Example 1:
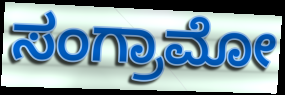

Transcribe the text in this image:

ಸಂಗ್ರಾಮೋ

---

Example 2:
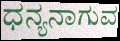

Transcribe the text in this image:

ಧನ್ಯನಾಗುವ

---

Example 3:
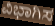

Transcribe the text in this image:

ವಿಭಾಗಿಸ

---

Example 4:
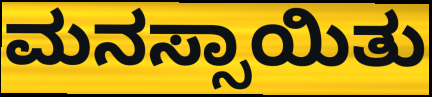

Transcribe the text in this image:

ಮನಸ್ಸಾಯಿತು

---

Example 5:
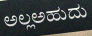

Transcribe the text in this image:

ಅಲ್ಲಅಹುದು